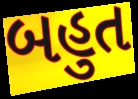
બહુત